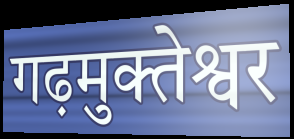
गढ़मुक्तेश्वर